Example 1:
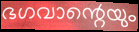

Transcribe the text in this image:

ഭഗവാന്റെയും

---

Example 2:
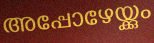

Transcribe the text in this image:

അപ്പോഴേയ്ക്കും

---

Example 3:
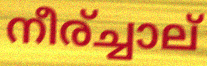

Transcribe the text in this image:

നീര്ച്ചാല്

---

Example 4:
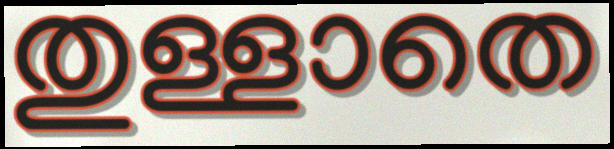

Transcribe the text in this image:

തുള്ളാതെ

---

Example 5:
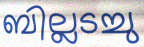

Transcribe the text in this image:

ബില്ലടച്ചു